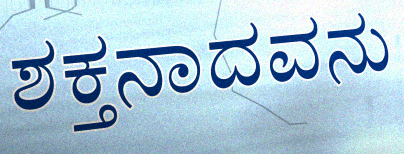
ಶಕ್ತನಾದವನು